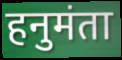
हनुमंता